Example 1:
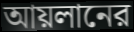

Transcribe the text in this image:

আয়লানের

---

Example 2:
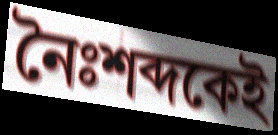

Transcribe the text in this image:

নৈঃশব্দকেই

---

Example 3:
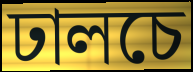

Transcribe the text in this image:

ঢালচে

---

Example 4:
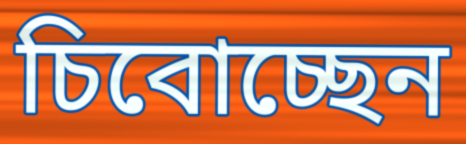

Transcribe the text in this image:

চিবোচ্ছেন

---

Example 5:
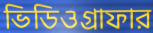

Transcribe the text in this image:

ভিডিওগ্রাফার